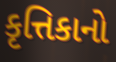
કૃત્તિકાનો